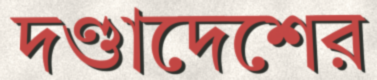
দণ্ডাদেশের